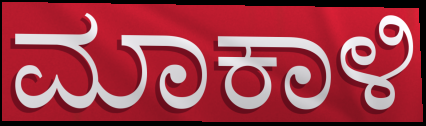
ಮಾಕಾಳಿ